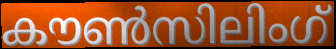
കൗൺസിലിംഗ്